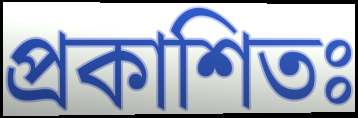
প্রকাশিতঃ